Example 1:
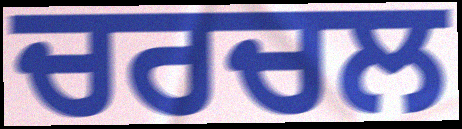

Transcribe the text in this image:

ਚਰਚਲ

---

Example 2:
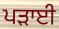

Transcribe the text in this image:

ਪੜਾਈ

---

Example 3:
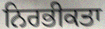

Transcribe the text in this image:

ਨਿਰਭੀਕਤਾ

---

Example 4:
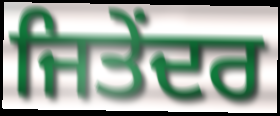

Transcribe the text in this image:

ਜਿਤੇਂਦਰ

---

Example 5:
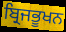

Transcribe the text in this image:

ਬ੍ਰਿਜਭੂਖਨ